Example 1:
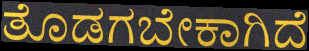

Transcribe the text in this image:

ತೊಡಗಬೇಕಾಗಿದೆ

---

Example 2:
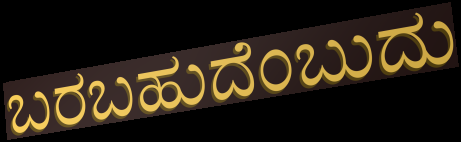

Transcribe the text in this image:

ಬರಬಹುದೆಂಬುದು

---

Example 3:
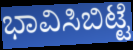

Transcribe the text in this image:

ಭಾವಿಸಿಬಿಟ್ಟೆ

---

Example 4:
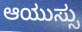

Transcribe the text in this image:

ಆಯುಸ್ಸು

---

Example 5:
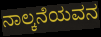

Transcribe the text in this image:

ನಾಲ್ಕನೆಯವನ